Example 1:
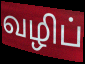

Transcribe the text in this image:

வழிப்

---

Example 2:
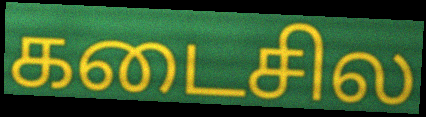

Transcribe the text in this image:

கடைசில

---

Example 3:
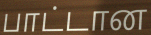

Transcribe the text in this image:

பாட்டான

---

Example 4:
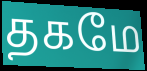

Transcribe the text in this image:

தகமே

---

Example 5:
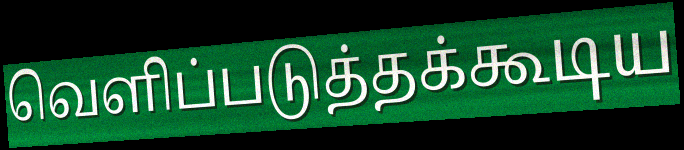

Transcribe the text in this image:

வெளிப்படுத்தக்கூடிய